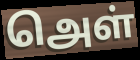
அெள்